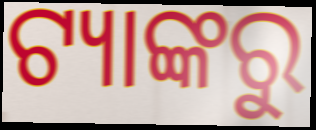
ଟ୍ୟାଙ୍କରୁ